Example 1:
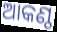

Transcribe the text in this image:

ଆକଣ୍ଠ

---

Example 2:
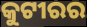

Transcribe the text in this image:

କୁଟୀରର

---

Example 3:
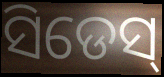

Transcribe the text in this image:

ସିଡେସ୍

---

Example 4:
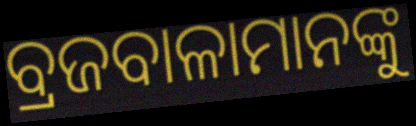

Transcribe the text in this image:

ବ୍ରଜବାଳାମାନଙ୍କୁ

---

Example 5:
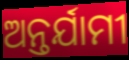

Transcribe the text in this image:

ଅନ୍ତର୍ଯାମୀ